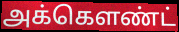
அக்கெளண்ட்